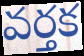
వర్తక